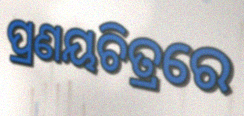
ପ୍ରଣୟଚିତ୍ରରେ